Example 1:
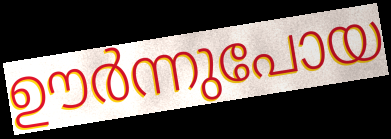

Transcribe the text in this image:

ഊർന്നുപോയ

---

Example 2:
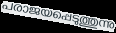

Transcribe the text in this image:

പരാജയപ്പെടുത്തുന്നു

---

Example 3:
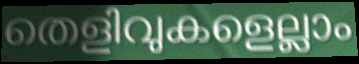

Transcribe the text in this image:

തെളിവുകളെല്ലാം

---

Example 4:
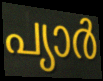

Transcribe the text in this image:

പ്യാർ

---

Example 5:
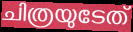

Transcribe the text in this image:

ചിത്രയുടേത്